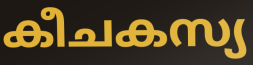
കീചകസ്യ